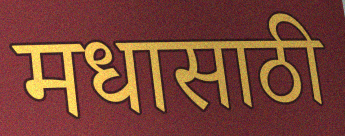
मधासाठी